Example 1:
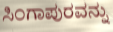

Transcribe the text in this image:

ಸಿಂಗಾಪುರವನ್ನು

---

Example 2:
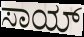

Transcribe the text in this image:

ಸಾಯ್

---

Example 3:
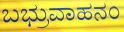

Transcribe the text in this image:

ಬಭ್ರುವಾಹನಂ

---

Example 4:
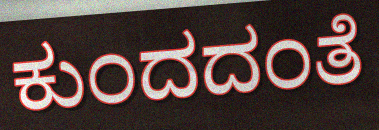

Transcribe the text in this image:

ಕುಂದದಂತೆ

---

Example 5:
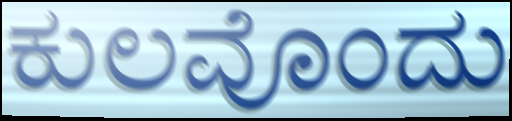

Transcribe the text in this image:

ಕುಲವೊಂದು